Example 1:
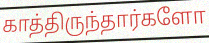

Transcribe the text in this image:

காத்திருந்தார்களோ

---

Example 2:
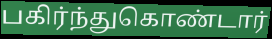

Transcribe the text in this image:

பகிர்ந்துகொண்டார்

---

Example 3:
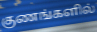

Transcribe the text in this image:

குணங்களில்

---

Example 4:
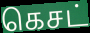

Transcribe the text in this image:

கெசட்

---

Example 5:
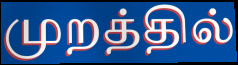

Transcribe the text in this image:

முறத்தில்